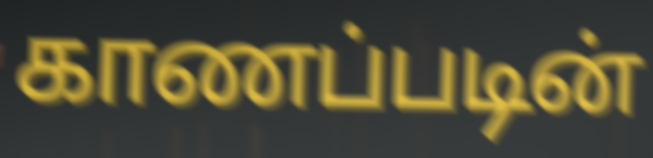
காணப்படின்